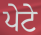
ਪੇਟੇ